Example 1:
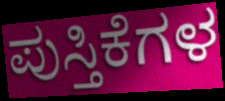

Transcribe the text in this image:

ಪುಸ್ತಿಕೆಗಳ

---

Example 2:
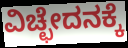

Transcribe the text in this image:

ವಿಚ್ಛೇದನಕ್ಕೆ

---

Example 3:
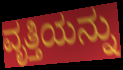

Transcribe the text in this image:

ವೃತ್ತಿಯನ್ನು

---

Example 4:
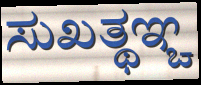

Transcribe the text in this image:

ಸುಖತ್ಥಞ್ಚ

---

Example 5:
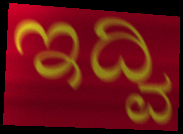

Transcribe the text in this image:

ಇದ್ವಿ